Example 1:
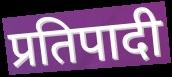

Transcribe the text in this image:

प्रतिपादी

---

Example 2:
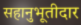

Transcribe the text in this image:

सहानुभूतीदार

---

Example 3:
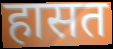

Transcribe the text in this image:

हासत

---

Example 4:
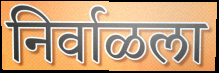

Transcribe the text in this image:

निर्वाळला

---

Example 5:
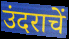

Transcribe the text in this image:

उंदराचें